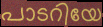
പാടറിയേ